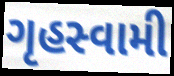
ગૃહસ્વામી